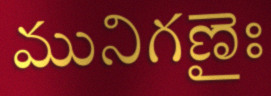
మునిగణైః